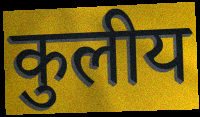
कुलीय